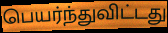
பெயர்ந்துவிட்டது